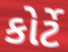
કોર્ટે